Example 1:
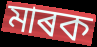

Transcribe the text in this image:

মাৰক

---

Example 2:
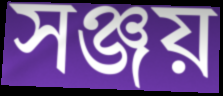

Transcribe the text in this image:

সঞ্জয়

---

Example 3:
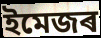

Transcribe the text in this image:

ইমেজৰ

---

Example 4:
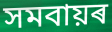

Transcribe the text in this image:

সমবায়ৰ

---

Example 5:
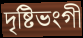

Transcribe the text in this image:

দৃষ্টিভংগী